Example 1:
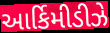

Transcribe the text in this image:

આર્કિમીડીઝે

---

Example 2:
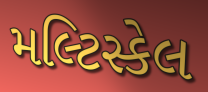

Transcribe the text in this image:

મલ્ટિસ્કેલ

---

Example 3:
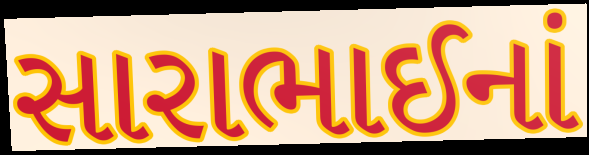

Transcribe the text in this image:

સારાભાઈનાં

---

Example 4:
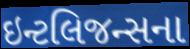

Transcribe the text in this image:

ઇન્ટલિજન્સના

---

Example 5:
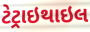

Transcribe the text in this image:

ટેટ્રાઇથાઇલ